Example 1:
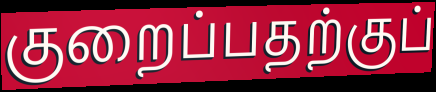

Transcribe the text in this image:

குறைப்பதற்குப்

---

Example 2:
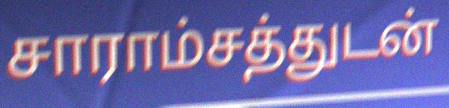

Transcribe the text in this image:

சாராம்சத்துடன்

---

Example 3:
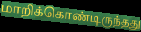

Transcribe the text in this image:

மாறிக்கொண்டிருந்தது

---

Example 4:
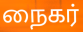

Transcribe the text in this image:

நைகர்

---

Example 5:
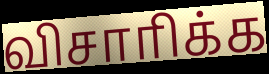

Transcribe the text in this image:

விசாரிக்க